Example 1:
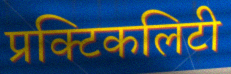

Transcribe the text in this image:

प्रक्टिकलिटी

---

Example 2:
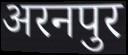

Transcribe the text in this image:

अरनपुर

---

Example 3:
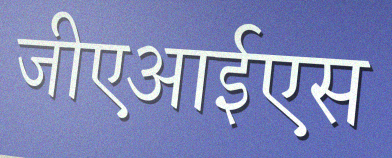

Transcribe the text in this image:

जीएआईएस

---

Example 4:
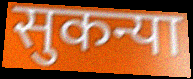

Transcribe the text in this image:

सुकन्या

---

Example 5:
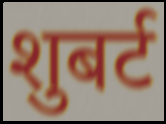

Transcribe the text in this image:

शुबर्ट